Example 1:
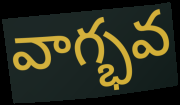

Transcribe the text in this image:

వాగ్భవ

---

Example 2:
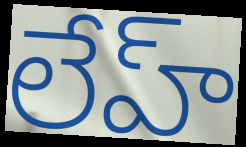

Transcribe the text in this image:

లేహ్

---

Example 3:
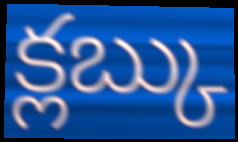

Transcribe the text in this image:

క్లబ్కు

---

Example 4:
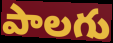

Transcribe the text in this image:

పాలగు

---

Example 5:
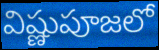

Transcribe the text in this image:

విష్ణుపూజలో